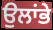
ਉਲਾਂਭੇ